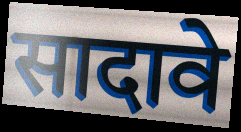
सादावे